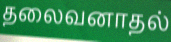
தலைவனாதல்